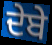
ਦੇਬੇ